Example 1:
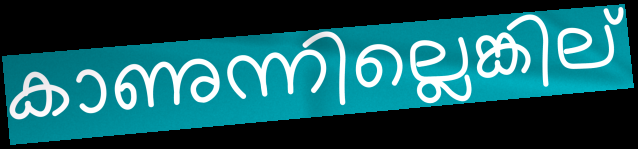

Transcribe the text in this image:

കാണുന്നില്ലെങ്കില്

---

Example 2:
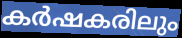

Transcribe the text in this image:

കർഷകരിലും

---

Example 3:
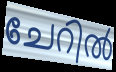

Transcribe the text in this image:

ചേറിൽ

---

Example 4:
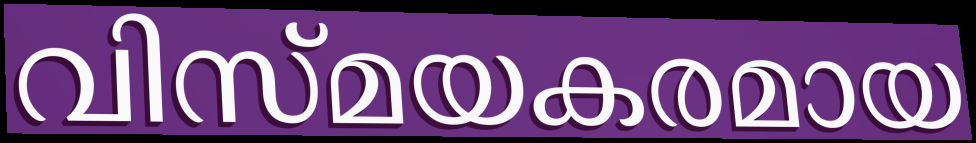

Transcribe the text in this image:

വിസ്മയകരമായ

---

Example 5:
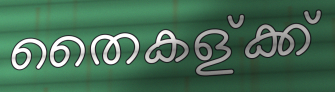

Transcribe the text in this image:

തൈകള്ക്ക്